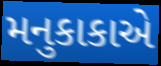
મનુકાકાએ